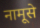
नामूसे